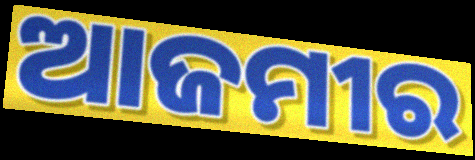
ଆଜମୀର